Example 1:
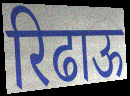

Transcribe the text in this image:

रिढाऊ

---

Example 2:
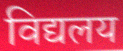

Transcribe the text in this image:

विद्यलय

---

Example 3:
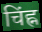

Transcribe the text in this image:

चिंह्न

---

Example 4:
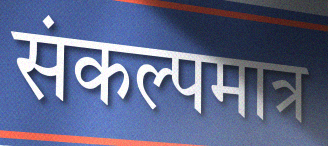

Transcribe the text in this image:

संकल्पमात्र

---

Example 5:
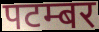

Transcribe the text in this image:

पटम्बर